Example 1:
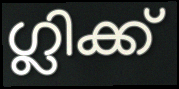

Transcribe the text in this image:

ഗ്ലിക്ക്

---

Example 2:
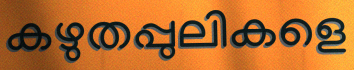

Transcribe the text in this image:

കഴുതപ്പുലികളെ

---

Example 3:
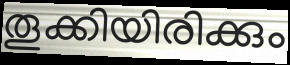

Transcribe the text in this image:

തൂക്കിയിരിക്കും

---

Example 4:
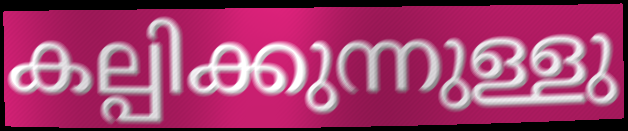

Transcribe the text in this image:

കല്പിക്കുന്നുള്ളു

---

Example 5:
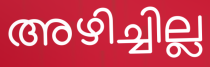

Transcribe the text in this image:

അഴിച്ചില്ല